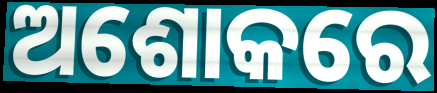
ଅଶୋକରେ